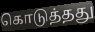
கொடுத்தது